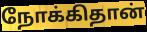
நோக்கிதான்